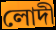
লোদী